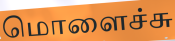
மொளைச்சு